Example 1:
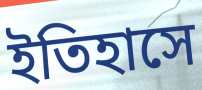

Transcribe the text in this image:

ইতিহাসে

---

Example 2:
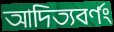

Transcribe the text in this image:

আদিত্যবর্ণং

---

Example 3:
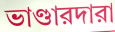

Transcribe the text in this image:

ভাণ্ডারদারা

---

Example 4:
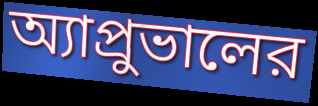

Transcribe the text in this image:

অ্যাপ্রুভালের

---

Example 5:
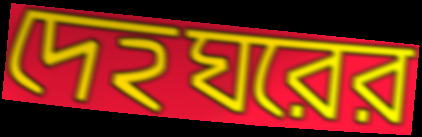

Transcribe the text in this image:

দেহঘরের